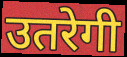
उतरेगी